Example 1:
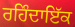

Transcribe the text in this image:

ਰਹਿੰਦਾਇੱਕ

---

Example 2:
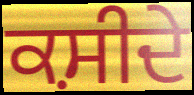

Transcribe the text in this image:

ਕ਼ਸੀਦੇ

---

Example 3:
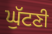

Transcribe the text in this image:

ਘੁੱਟਣੀ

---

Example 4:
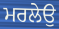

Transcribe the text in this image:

ਮਰਲੇਉ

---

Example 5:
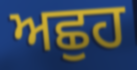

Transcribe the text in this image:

ਅਛੁਹ